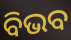
ବିଭବ